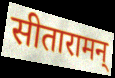
सीतारामन्